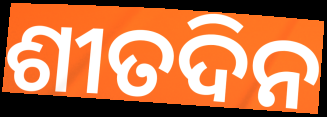
ଶୀତଦିନ